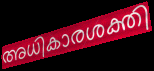
അധികാരശക്തി